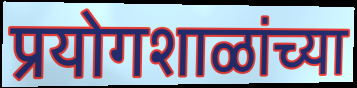
प्रयोगशाळांच्या